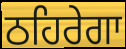
ਠਹਿਰੇਗਾ